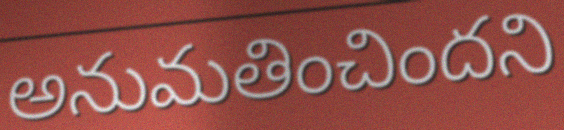
అనుమతించిందని